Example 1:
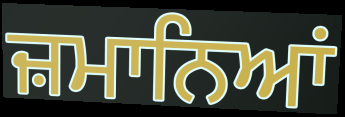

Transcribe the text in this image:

ਜ਼ਮਾਨਿਆਂ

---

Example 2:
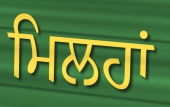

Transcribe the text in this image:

ਮਿਲਹਾਂ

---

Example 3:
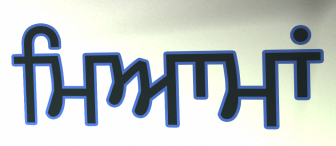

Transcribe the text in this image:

ਮਿਆਮਾਂ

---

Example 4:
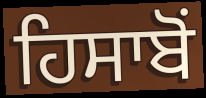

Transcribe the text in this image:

ਹਿਸਾਬੋਂ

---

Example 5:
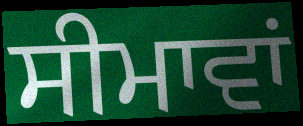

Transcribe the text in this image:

ਸੀਮਾਵਾਂ